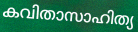
കവിതാസാഹിത്യ